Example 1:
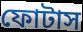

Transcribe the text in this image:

ফোটাস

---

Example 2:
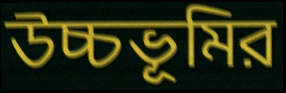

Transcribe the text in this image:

উচ্চভূমির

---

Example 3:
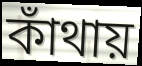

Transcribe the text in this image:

কাঁথায়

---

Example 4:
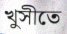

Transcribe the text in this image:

খুসীতে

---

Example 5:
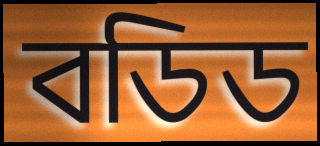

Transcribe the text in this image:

বডিড